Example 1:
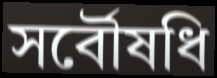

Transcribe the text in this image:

সর্বৌষধি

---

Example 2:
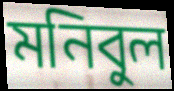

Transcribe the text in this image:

মনিবুল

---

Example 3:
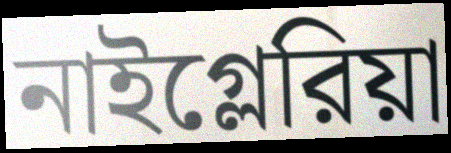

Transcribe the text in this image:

নাইগ্লেরিয়া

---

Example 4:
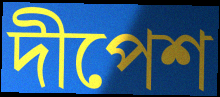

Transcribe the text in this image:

দীপেশ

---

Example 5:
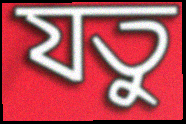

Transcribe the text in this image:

যতু